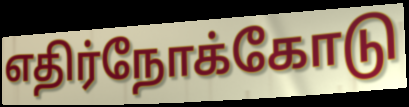
எதிர்நோக்கோடு